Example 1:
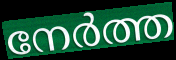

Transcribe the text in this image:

നേർത്ത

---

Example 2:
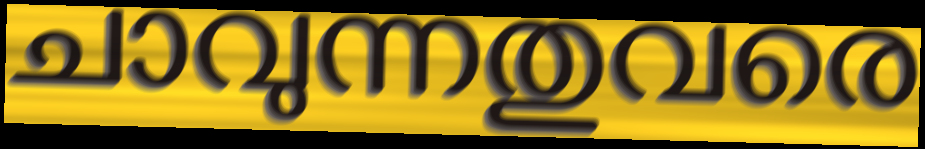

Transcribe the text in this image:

ചാവുന്നതുവരെ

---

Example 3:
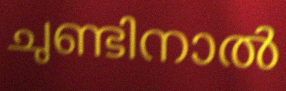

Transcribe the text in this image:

ചുണ്ടിനാൽ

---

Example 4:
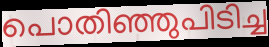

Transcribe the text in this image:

പൊതിഞ്ഞുപിടിച്ച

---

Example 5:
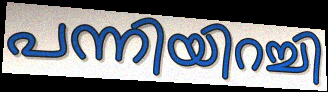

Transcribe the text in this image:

പന്നിയിറച്ചി